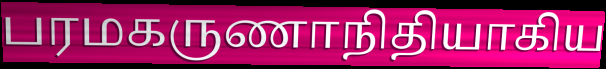
பரமகருணாநிதியாகிய